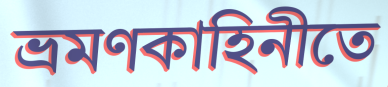
ভ্রমণকাহিনীতে